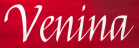
Venina